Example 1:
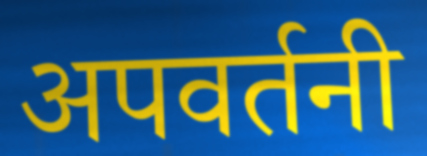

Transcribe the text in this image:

अपवर्तनी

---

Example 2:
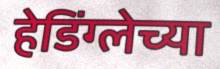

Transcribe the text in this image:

हेडिंग्लेच्या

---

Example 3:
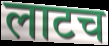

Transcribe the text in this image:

लाटच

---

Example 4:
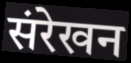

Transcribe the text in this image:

संरेखन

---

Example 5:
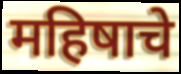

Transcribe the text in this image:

महिषाचे